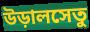
উড়ালসেতু